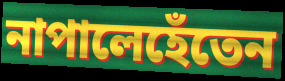
নাপালেহেঁতেন